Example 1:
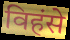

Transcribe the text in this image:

विहंसे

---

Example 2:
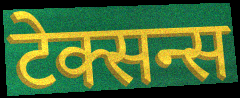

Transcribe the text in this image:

टेक्सन्स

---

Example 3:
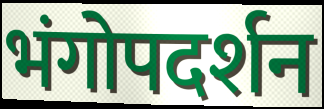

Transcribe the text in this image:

भंगोपदर्शन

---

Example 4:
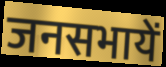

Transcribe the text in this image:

जनसभायें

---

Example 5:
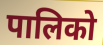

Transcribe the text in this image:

पालिको